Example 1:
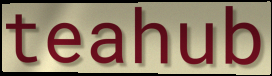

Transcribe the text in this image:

teahub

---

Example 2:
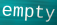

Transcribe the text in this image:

empty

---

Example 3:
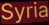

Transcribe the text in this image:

Syria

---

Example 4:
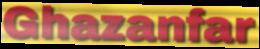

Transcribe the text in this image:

Ghazanfar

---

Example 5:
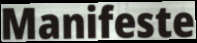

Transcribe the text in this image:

Manifeste